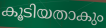
കൂടിയതാകും